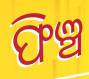
ଫିଞ୍ଚ